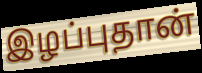
இழப்புதான்